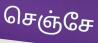
செஞ்சே